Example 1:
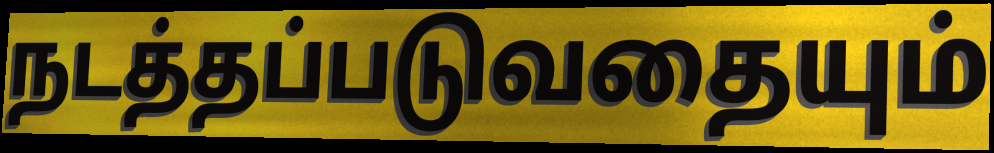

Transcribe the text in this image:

நடத்தப்படுவதையும்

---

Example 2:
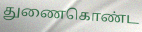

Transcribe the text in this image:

துணைகொண்ட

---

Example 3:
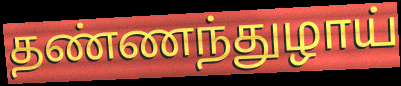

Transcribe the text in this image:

தண்ணந்துழாய்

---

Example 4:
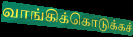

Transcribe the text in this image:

வாங்கிக்கொடுக்கச்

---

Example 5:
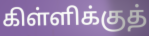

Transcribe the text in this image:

கிள்ளிக்குத்